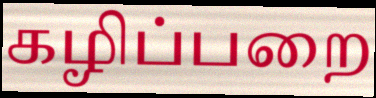
கழிப்பறை